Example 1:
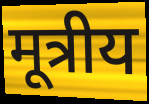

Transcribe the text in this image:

मूत्रीय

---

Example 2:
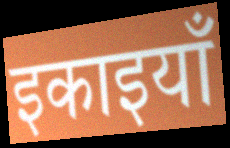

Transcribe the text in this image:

इकाइयाँ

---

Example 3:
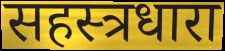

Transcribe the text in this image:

सहस्त्रधारा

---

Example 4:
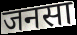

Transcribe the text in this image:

जनसा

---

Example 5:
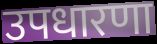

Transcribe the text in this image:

उपधारणा